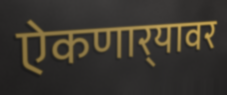
ऐकणार्‍यावर